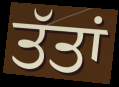
ਤੱਤਾਂ